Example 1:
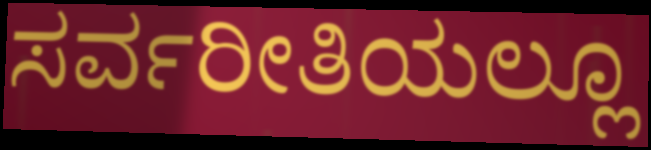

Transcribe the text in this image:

ಸರ್ವರೀತಿಯಲ್ಲೂ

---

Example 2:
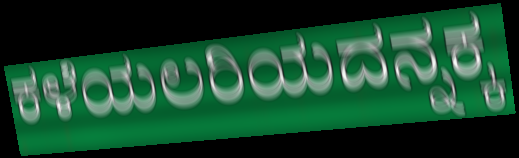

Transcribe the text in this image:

ಕಳೆಯಲರಿಯದನ್ನಕ್ಕ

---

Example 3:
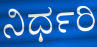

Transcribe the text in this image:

ನಿರ್ಧರಿ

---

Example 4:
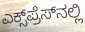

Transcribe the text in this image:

ಎಕ್ಸ್‌ಪ್ರೆಸ್‌ನಲ್ಲಿ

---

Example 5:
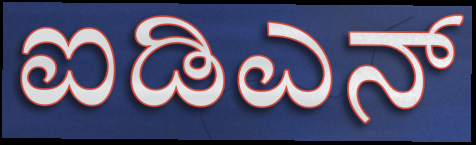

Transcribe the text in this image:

ಐಡಿಎನ್